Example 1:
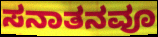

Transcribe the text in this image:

ಸನಾತನವೂ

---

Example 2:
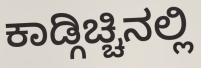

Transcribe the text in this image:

ಕಾಡ್ಗಿಚ್ಚಿನಲ್ಲಿ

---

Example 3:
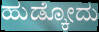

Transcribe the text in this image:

ಹುಡ್ಕೋದು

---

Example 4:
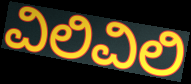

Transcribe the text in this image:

ವಿಲಿವಿಲಿ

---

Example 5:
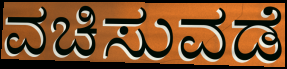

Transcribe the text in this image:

ವಚಿಸುವಡೆ